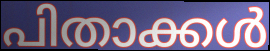
പിതാക്കൾ